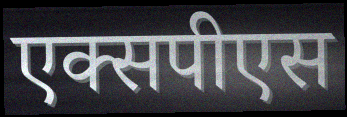
एक्सपीएस